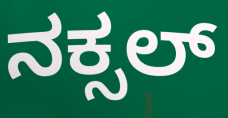
ನಕ್ಸಲ್